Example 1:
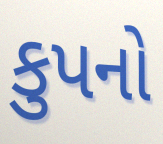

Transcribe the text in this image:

કુપનો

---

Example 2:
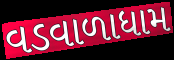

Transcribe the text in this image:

વડવાળાધામ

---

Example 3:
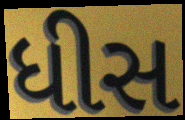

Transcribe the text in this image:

ધીસ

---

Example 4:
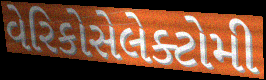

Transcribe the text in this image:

વેરિકોસેલેક્ટોમી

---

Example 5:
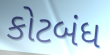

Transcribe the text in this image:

કોટબંધ